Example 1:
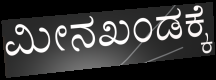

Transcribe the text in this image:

ಮೀನಖಂಡಕ್ಕೆ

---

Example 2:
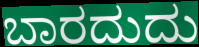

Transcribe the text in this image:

ಬಾರದುದು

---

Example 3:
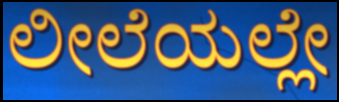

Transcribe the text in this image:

ಲೀಲೆಯಲ್ಲೇ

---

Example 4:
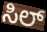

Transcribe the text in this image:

ಸಿಲ್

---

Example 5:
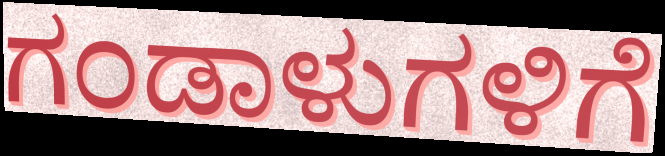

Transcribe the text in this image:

ಗಂಡಾಳುಗಳಿಗೆ